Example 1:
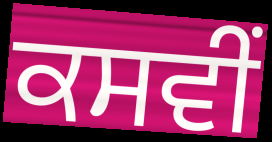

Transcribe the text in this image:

ਕਸਵੀਂ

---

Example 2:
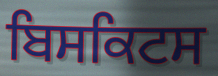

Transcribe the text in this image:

ਬਿਸਕਿਟਸ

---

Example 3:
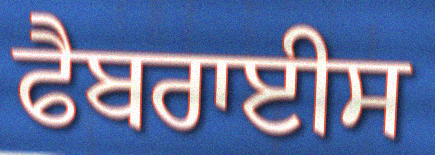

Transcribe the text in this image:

ਫੈਬਰਾਈਸ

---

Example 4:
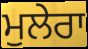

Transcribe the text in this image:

ਮੁਲੇਰਾ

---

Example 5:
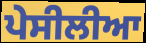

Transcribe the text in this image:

ਪੇਸੀਲੀਆ